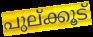
പുല്ക്കൂട്